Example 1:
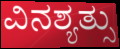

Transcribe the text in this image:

ವಿನಶ್ಯತ್ಸು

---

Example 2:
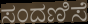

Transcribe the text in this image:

ಸಂದಣಿಸೆ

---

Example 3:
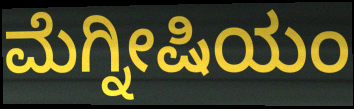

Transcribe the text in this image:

ಮೆಗ್ನೀಷಿಯಂ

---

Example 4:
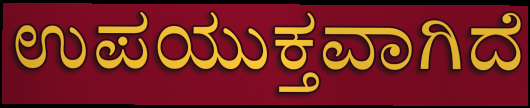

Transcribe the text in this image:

ಉಪಯುಕ್ತವಾಗಿದೆ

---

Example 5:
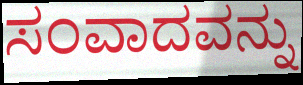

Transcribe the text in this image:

ಸಂವಾದವನ್ನು